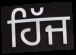
ਹਿੱਜ